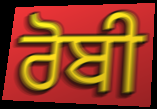
ਰੋਬੀ